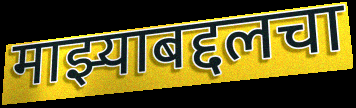
माझ्याबद्दलचा